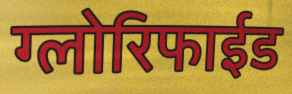
ग्लोरिफाईड